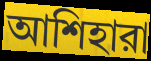
আশিহারা